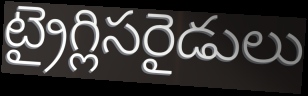
ట్రైగ్లిసరైడులు